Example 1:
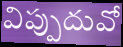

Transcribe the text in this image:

విప్పుదువో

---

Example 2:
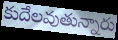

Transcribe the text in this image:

కుదేలవుతున్నారు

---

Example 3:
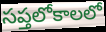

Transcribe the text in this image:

సప్తలోకాలలో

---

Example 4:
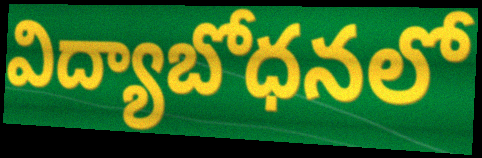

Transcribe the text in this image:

విద్యాబోధనలో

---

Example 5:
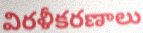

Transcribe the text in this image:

విరళీకరణాలు